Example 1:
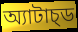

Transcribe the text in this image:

অ্যাটাচ্ড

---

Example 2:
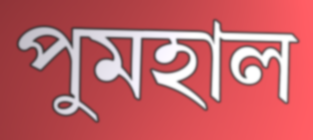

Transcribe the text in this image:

পুমহাল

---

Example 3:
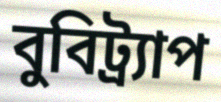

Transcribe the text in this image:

বুবিট্র্যাপ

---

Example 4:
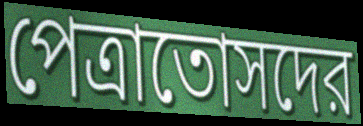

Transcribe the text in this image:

পেত্রাতোসদের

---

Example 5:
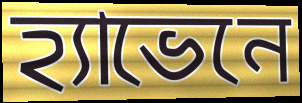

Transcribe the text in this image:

হ্যাভেনে